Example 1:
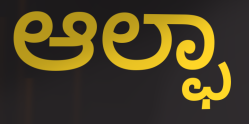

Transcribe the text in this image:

ಆಲ್ಫಾ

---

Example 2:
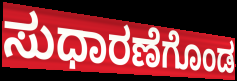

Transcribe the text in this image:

ಸುಧಾರಣೆಗೊಂಡ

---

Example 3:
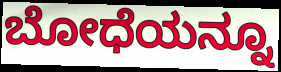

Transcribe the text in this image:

ಬೋಧೆಯನ್ನೂ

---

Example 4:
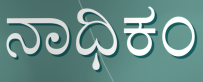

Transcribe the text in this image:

ನಾಧಿಕಂ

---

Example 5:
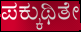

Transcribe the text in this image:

ಪಕ್ಕುಥಿತೇ